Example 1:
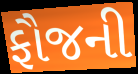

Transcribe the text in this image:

ફૌજની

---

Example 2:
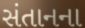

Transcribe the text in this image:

સંતાનના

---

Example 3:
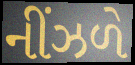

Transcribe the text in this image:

નીંઝળે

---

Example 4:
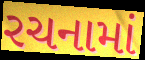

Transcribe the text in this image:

રચનામાં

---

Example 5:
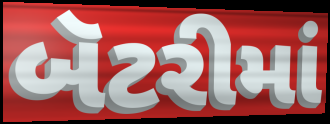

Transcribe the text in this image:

બૅટરીમાં